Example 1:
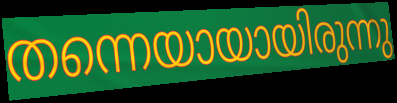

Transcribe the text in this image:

തന്നെയായായിരുന്നു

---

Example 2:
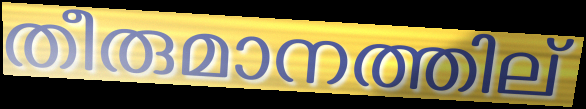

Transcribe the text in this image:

തീരുമാനത്തില്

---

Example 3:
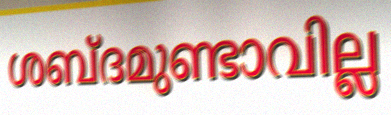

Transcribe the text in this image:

ശബ്ദമുണ്ടാവില്ല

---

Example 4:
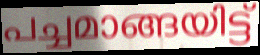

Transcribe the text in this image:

പച്ചമാങ്ങയിട്ട്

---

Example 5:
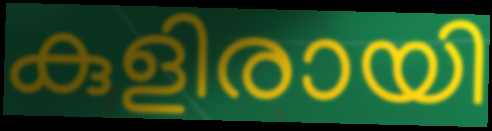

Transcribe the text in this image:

കുളിരായി